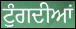
ਟੁੰਗਦੀਆਂ